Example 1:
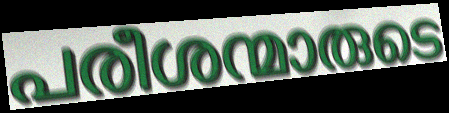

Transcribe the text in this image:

പരീശന്മാരുടെ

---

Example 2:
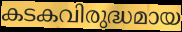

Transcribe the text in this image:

കടകവിരുദ്ധമായ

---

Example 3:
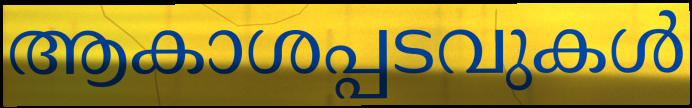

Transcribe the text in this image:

ആകാശപ്പടവുകൾ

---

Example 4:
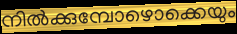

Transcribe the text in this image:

നിൽക്കുമ്പോഴൊക്കെയും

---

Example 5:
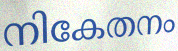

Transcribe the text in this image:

നികേതനം